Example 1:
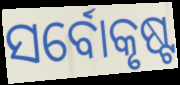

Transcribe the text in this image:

ସର୍ବୋକୃଷ୍ଟ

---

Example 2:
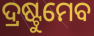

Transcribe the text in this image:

ଦ୍ରଷ୍ଟୁମେବ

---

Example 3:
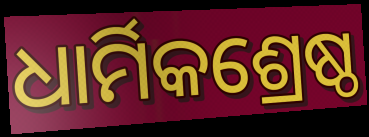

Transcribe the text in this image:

ଧାର୍ମିକଶ୍ରେଷ୍ଠ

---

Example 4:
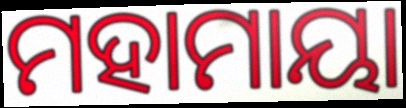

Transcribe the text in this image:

ମହାମାୟା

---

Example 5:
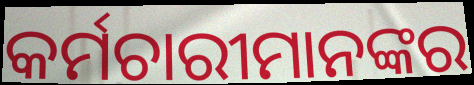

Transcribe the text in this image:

କର୍ମଚାରୀମାନଙ୍କର